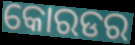
କୋରଡର